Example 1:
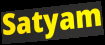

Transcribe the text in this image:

Satyam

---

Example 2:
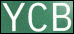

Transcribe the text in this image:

YCB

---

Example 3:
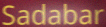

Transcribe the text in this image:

Sadabar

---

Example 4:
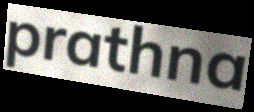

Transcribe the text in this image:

prathna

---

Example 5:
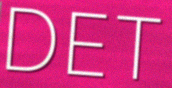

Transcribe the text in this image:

DET